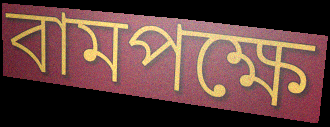
বামপক্ষে